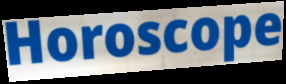
Horoscope